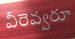
వీరెవ్వరూ